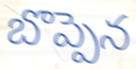
బొప్పెన